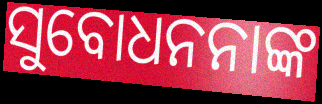
ସୁବୋଧନନାଙ୍କ